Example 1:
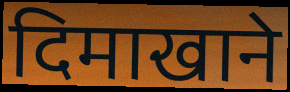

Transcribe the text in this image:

दिमाखाने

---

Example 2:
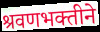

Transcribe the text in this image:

श्रवणभक्तीने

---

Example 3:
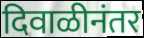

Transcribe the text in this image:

दिवाळीनंतर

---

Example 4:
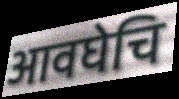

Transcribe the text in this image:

आवघेचि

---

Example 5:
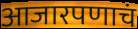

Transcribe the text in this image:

आजारपणाचं